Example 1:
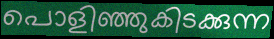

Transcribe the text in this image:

പൊളിഞ്ഞുകിടക്കുന്ന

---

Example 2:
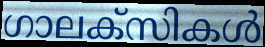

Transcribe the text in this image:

ഗാലക്സികൾ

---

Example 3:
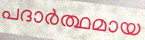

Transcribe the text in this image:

പദാർത്ഥമായ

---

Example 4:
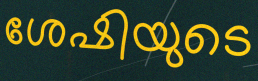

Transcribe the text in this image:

ശേഷിയുടെ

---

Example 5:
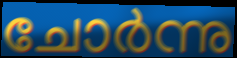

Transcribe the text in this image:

ചോർന്നു